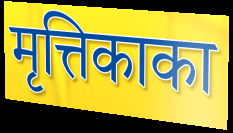
मृत्तिकाका